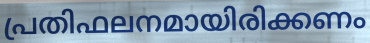
പ്രതിഫലനമായിരിക്കണം